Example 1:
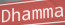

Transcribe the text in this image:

Dhamma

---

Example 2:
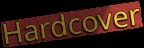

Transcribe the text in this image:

Hardcover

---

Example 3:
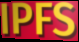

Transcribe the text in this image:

IPFS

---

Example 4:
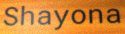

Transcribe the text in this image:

Shayona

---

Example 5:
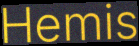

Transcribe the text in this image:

Hemis